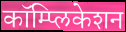
कॉम्प्लिकेशन